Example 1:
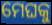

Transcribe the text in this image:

ମେଘକୁ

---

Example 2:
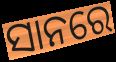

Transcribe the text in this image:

ସାନରେ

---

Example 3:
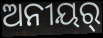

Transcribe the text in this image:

ଅନୀୟର୍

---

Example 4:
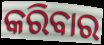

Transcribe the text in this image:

କରିବାର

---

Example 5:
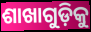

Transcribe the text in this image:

ଶାଖାଗୁଡ଼ିକୁ